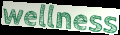
wellness